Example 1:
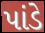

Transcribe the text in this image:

પાંડે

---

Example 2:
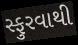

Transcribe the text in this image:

સ્ફુરવાથી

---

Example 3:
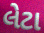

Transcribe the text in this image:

લેટા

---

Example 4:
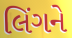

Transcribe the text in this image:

લિંગને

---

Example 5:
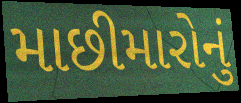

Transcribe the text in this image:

માછીમારોનું